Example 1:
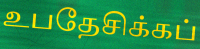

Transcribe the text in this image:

உபதேசிக்கப்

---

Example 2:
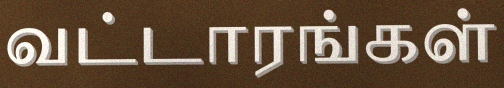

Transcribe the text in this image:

வட்டாரங்கள்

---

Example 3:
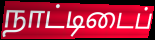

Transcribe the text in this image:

நாட்டிடைப்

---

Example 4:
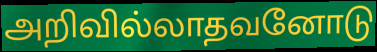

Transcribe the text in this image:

அறிவில்லாதவனோடு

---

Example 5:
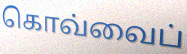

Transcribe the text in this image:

கொவ்வைப்